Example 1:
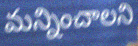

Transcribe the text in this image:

మన్నించాలని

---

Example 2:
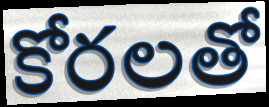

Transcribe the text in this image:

కోరలతో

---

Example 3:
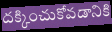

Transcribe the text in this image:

దక్కించుకోవడానికి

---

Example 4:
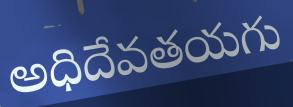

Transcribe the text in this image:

అధిదేవతయగు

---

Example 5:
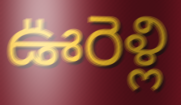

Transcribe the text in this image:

ఊరెళ్లి